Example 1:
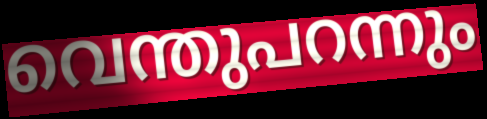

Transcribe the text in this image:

വെന്തുപറന്നും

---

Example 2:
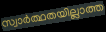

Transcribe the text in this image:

സ്വാർത്ഥതയില്ലാത്ത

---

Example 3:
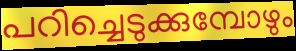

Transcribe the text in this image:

പറിച്ചെടുക്കുമ്പോഴും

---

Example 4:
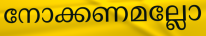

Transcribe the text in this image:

നോക്കണമല്ലോ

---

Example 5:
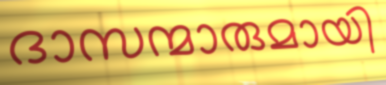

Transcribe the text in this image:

ദാസന്മാരുമായി